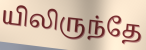
யிலிருந்தே